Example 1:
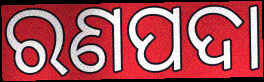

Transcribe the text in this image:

ରଣପଦା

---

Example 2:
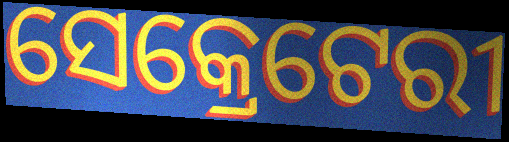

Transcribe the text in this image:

ସେକ୍ରେଟେରୀ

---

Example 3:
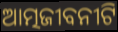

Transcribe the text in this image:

ଆତ୍ମଜୀବନୀଟି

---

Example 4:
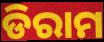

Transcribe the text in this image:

ଡିରାମ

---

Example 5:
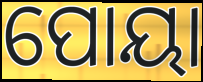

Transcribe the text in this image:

ପୋୟା